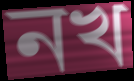
নখ